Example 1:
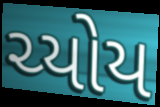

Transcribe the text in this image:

ચ્યોય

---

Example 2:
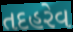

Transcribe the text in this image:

તદહરેવ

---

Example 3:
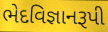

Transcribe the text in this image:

ભેદવિજ્ઞાનરૂપી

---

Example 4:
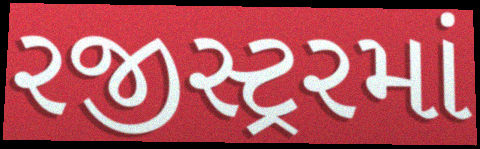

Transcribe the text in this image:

રજીસ્ટ્રરમાં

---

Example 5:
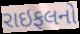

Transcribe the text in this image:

રાઇફલનો